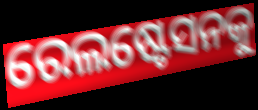
ରେଲଷ୍ଟେସନକୁ